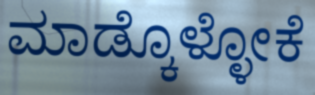
ಮಾಡ್ಕೊಳ್ಳೋಕೆ